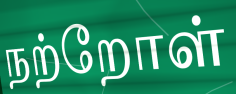
நற்றோள்